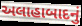
અલાહાબાદનું